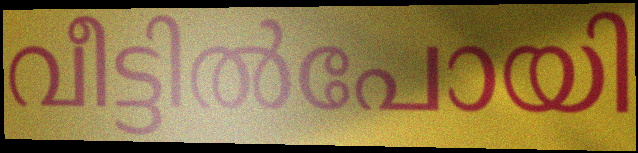
വീട്ടിൽപോയി